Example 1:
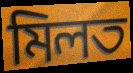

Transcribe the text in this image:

মিলত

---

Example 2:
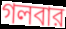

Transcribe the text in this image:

গলবার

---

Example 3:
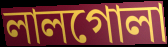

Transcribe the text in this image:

লালগোলা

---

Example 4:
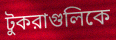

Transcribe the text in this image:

টুকরাগুলিকে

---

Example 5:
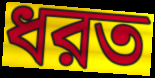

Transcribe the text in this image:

ধরত